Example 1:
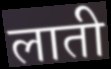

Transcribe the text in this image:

लाती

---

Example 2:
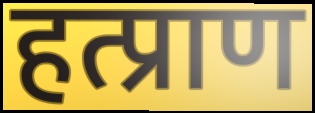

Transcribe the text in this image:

हत्प्राण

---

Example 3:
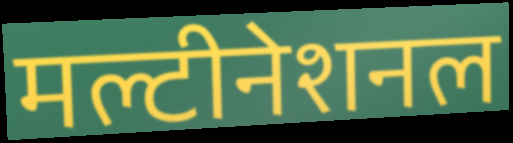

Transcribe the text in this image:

मल्टीनेशनल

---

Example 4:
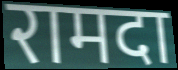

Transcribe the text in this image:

रामदा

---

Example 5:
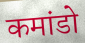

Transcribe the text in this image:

कमांडो